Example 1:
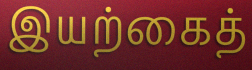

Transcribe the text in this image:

இயற்கைத்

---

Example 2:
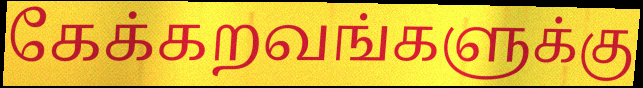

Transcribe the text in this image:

கேக்கறவங்களுக்கு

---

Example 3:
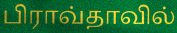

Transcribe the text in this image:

பிராவ்தாவில்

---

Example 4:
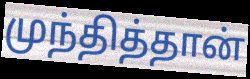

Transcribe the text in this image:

முந்தித்தான்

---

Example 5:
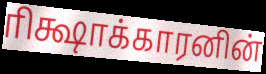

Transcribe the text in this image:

ரிக்ஷாக்காரனின்